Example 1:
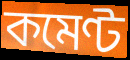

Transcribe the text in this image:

কমেণ্ট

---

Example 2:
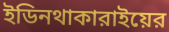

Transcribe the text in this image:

ইডিনথাকারাইয়ের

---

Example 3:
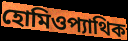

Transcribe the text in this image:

হোমিওপ্যাথিক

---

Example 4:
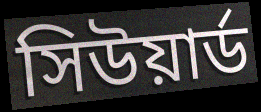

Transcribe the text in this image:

সিউয়ার্ড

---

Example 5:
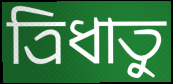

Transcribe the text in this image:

ত্রিধাতু